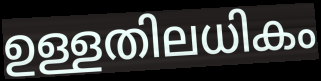
ഉള്ളതിലധികം